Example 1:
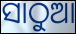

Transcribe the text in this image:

ସାଠୁଆ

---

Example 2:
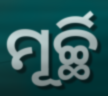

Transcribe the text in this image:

ମୂର୍ଚ୍ଛି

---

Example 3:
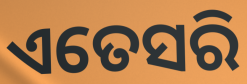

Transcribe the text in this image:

ଏତେସରି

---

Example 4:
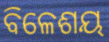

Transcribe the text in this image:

ବିଳେଶୟ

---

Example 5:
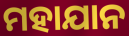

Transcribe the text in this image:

ମହାଯାନ